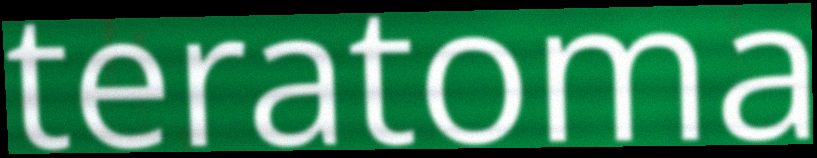
teratoma